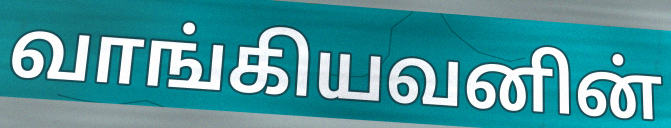
வாங்கியவனின்